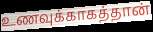
உணவுக்காகத்தான்